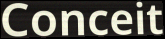
Conceit